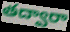
తద్వారా